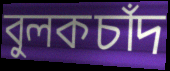
বুলকচাঁদ